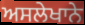
ਅਸਲੇਖਾਨੇ